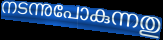
നടന്നുപോകുന്നതു